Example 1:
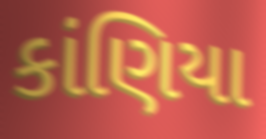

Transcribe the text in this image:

કાંણિયા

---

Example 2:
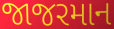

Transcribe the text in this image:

જાજરમાન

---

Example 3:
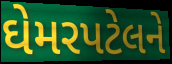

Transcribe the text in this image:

ઘેમરપટેલને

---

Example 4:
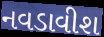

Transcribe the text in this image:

નવડાવીશ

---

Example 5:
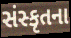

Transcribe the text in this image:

સંસ્કૃતના